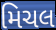
મિચલ